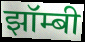
झॉम्बी